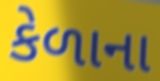
કેળાના